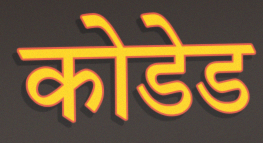
कोडेड